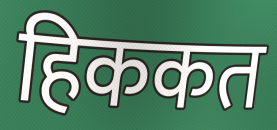
हिककत